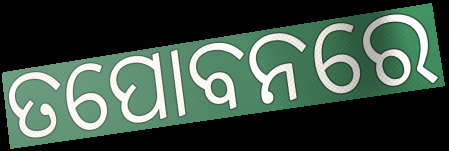
ତପୋବନରେ